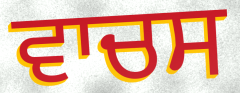
ਵਾਚਸ